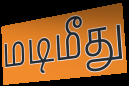
மடிமீது